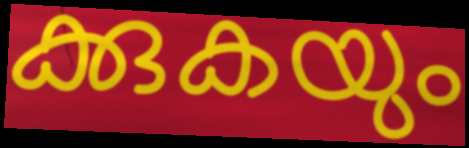
ക്കുകയും